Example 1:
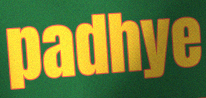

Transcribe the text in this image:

padhye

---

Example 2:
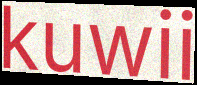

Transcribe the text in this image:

kuwii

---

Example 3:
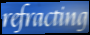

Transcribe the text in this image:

refracting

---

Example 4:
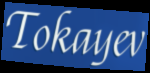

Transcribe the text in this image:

Tokayev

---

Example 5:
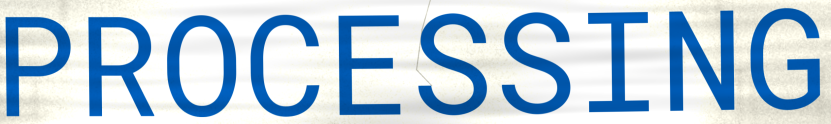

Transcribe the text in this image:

PROCESSING